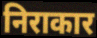
निराकार